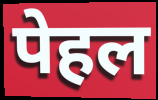
पेहल